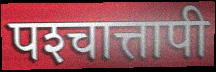
पश्‍चात्तापी